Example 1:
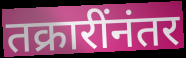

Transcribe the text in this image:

तक्रारींनंतर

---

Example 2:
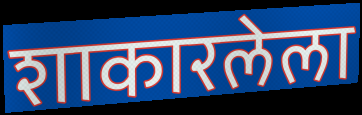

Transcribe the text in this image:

शाकारलेला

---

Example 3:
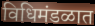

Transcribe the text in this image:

विधिमंडळात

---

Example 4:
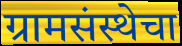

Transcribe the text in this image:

ग्रामसंस्थेचा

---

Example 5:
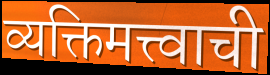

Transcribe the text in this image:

व्यक्तिमत्त्वाची